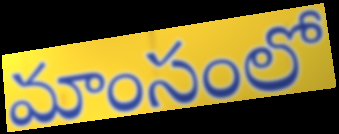
మాంసంలో